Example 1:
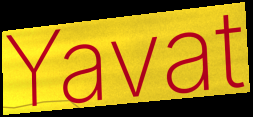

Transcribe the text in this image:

Yavat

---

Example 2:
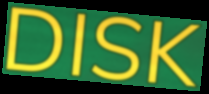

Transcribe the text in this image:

DISK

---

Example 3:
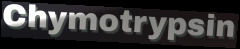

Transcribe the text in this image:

Chymotrypsin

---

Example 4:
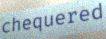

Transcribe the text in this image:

chequered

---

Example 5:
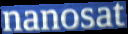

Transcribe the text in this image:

nanosat